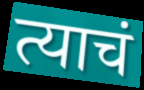
त्याचं